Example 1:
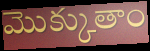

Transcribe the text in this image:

మొక్కుతాం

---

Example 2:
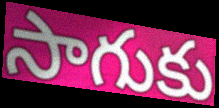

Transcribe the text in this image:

సాగుకు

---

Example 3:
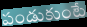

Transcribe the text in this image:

పండుకుంటే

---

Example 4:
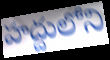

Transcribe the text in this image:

హద్దులోని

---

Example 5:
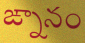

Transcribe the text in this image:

ఙ్నానం